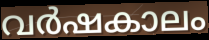
വർഷകാലം